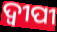
ଦ୍ଵୀପୀ